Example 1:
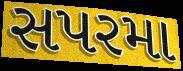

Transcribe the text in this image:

સપરમા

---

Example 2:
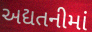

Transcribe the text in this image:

અદ્યતનીમાં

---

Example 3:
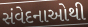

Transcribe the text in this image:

સંવેદનાઓથી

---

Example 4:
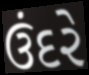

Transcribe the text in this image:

ઉંદરે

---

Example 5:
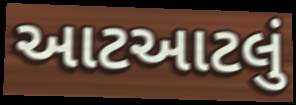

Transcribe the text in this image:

આટઆટલું